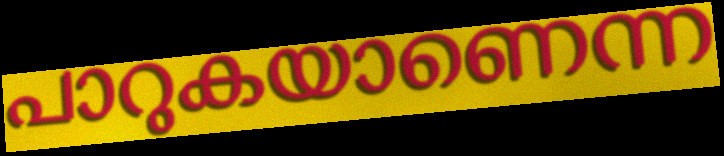
പാറുകയാണെന്ന